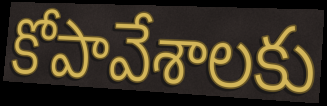
కోపావేశాలకు